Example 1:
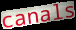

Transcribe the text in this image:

canals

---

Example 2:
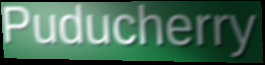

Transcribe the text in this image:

Puducherry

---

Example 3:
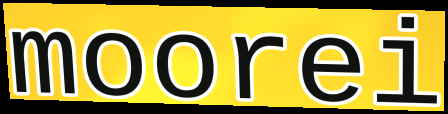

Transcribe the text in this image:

moorei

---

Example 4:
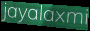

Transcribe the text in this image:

jayalaxmi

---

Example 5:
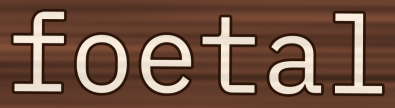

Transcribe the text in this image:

foetal